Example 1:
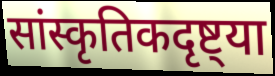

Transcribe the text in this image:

सांस्कृतिकदृष्ट्या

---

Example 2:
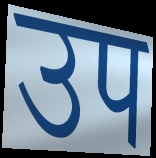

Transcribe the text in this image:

उप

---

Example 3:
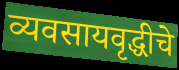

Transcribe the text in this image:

व्यवसायवृद्धीचे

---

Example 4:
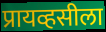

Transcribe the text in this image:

प्रायव्हसीला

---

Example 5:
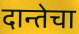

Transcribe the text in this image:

दान्तेचा